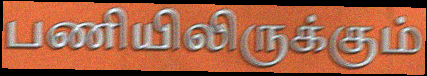
பணியிலிருக்கும்